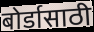
बोर्डासाठी